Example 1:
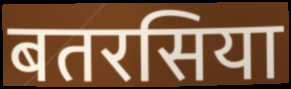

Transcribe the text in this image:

बतरसिया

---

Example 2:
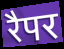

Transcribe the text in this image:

रैपर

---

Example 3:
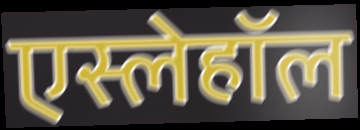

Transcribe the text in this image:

एस्लेहॉल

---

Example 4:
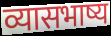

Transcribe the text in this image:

व्यासभाष्य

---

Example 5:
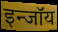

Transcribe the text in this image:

इन्जॉय